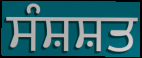
ਸੰਸ਼ਸ਼ਤ